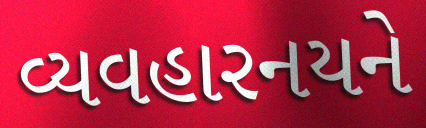
વ્યવહારનયને